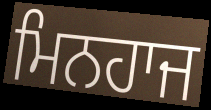
ਮਿਨਹਾਜ